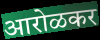
आरोळकर